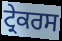
ਟ੍ਰੇਕਰਸ